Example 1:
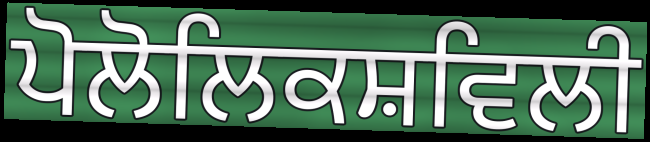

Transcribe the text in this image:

ਪੋਲੋਲਿਕਸ਼ਵਿਲੀ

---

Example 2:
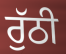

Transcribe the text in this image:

ਰੁੱਠੀ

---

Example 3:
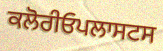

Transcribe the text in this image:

ਕਲੋਰੀਓਪਲਾਸਟਸ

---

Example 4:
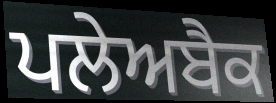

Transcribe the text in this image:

ਪਲੇਅਬੈਕ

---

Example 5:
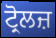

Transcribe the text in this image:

ਟ੍ਰੋਲਜ਼